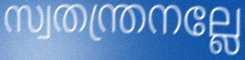
സ്വതന്ത്രനല്ലേ